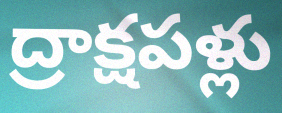
ద్రాక్షపళ్లు